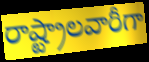
రాష్ట్రాలవారీగా